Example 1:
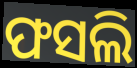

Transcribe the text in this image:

ଫସଲି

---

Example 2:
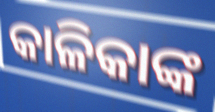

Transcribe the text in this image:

କାଳିକାଙ୍କ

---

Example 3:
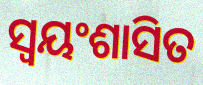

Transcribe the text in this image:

ସ୍ୱୟଂଶାସିତ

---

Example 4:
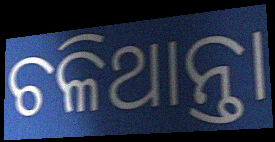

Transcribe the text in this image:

ଚଳିଥାନ୍ତା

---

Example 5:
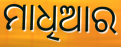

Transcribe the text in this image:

ମାଧିଆର